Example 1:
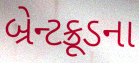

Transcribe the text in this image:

બ્રેન્ટક્રૂડના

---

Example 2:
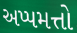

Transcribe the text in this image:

અપ્પમત્તો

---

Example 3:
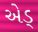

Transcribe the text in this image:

એડ્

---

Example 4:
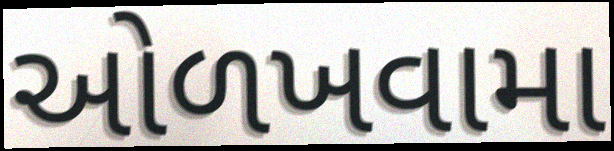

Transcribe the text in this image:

ઓળખવામા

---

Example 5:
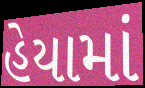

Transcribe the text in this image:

હેયામાં